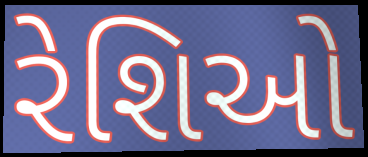
રેશિઓ